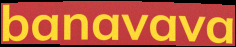
banavava